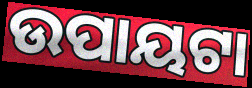
ଉପାୟଟା